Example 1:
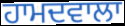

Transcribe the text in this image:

ਹਾਮਦਵਾਲਾ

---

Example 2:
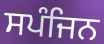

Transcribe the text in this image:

ਸਪੰਜਿਨ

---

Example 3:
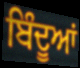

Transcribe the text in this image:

ਬਿੰਦੂਆਂ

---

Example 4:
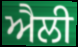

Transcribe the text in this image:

ਐਲੀ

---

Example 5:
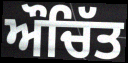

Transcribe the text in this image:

ਔਚਿੱਤ